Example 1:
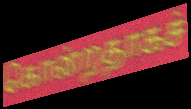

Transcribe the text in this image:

கொன்றதாகச்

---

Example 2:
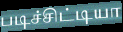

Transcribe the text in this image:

படிச்சிட்டியா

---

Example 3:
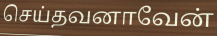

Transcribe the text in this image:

செய்தவனாவேன்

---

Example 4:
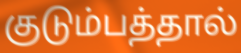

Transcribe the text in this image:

குடும்பத்தால்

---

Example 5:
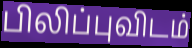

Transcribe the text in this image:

பிலிப்புவிடம்